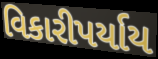
વિકારીપર્યાય